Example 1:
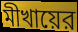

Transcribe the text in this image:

মীখায়ের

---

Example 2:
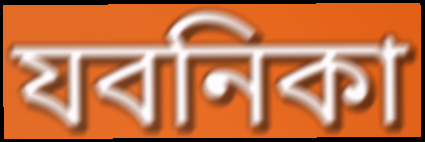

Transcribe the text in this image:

যবনিকা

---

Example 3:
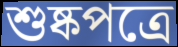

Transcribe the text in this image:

শুষ্কপত্রে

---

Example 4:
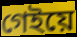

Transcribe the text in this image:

গেইয়ে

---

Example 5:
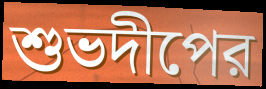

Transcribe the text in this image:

শুভদীপের